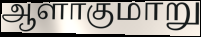
ஆளாகுமாறு